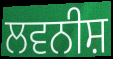
ਲਵਨੀਸ਼